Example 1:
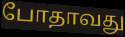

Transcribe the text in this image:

போதாவது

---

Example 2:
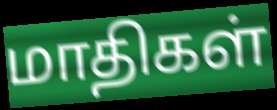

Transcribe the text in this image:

மாதிகள்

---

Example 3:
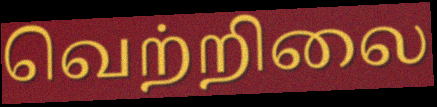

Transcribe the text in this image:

வெற்றிலை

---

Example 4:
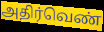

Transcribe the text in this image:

அதிர்வெண்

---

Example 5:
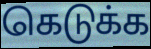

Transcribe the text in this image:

கெடுக்க